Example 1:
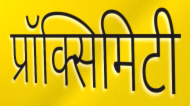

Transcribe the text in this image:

प्रॉक्सिमिटी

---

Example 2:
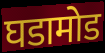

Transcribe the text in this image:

घडामोड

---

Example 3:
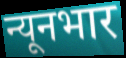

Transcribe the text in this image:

न्यूनभार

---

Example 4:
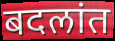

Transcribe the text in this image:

बदलांत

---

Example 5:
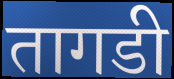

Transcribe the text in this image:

तागडी